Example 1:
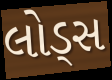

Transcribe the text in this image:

લોડ્સ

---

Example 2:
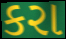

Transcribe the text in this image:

કરા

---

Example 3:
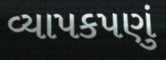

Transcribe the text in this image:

વ્યાપકપણું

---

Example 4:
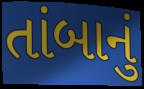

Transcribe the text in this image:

તાંબાનું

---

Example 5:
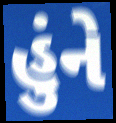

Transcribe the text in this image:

હુંને